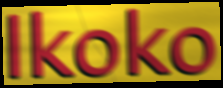
Ikoko